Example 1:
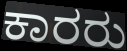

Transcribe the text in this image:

ಕಾರರು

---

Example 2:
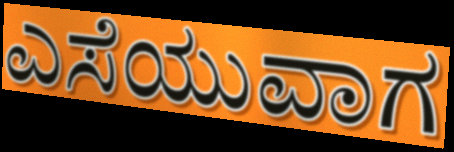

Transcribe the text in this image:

ಎಸೆಯುವಾಗ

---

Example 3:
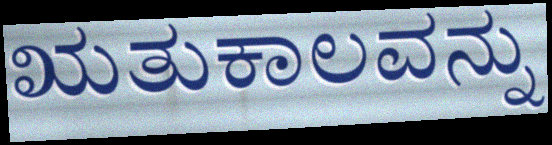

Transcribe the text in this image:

ಋತುಕಾಲವನ್ನು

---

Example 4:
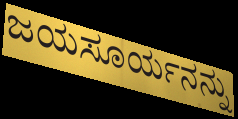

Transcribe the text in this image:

ಜಯಸೂರ್ಯನನ್ನು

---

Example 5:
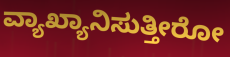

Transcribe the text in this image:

ವ್ಯಾಖ್ಯಾನಿಸುತ್ತೀರೋ